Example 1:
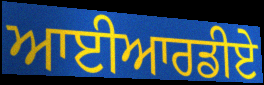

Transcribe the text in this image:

ਆਈਆਰਡੀਏ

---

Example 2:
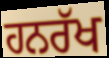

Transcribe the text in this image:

ਹਨਰੱਖ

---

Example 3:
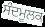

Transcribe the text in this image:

ਸੰਦਮੂਲਕ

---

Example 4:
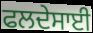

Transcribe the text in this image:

ਫਲਦੇਸਾਈ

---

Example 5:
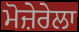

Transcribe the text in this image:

ਮੋਜ਼ੇਰੇਲਾ